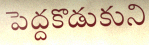
పెద్దకొడుకుని